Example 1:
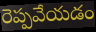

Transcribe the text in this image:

రెప్పవేయడం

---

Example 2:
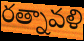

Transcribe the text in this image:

రత్నావళి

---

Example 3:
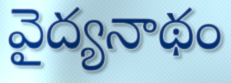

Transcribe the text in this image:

వైద్యనాథం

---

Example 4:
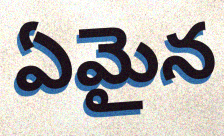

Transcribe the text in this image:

ఏమైన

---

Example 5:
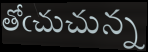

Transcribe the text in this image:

తోఁచుచున్న